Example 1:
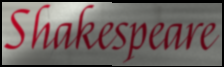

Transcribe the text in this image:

Shakespeare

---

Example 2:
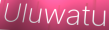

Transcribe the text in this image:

Uluwatu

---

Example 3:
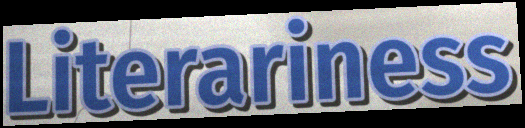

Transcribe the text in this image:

Literariness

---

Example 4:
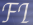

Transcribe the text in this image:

FI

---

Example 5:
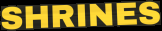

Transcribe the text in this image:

SHRINES